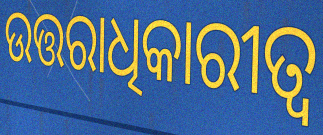
ଉତ୍ତରାଧିକାରୀତ୍ଵ